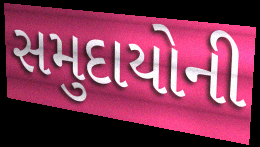
સમુદાયોની